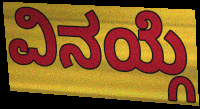
ವಿನಯ್ಗೆ